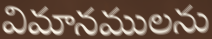
విమానములను